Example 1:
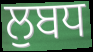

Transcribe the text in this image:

ਲੁਬਧ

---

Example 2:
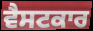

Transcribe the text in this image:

ਵੈਸਟਕਾਰ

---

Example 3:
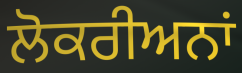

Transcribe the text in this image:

ਲੋਕਰੀਅਨਾਂ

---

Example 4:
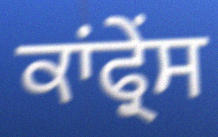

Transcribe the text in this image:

ਕਾਂਫ੍ਰੇਂਸ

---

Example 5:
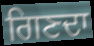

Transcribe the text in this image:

ਗਿਣਦਾ